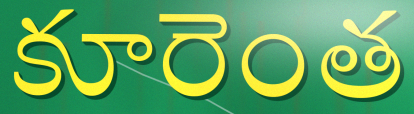
కూరెంత